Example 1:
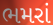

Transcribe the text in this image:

ભમરાં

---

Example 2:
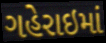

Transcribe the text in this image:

ગહેરાઇમાં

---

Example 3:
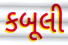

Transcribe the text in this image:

કબૂલી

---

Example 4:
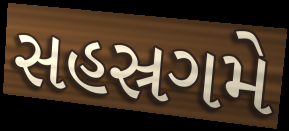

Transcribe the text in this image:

સહસ્રગમે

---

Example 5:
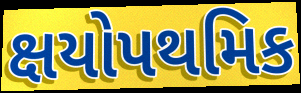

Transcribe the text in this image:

ક્ષયોપથમિક